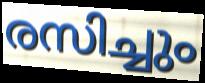
രസിച്ചും